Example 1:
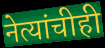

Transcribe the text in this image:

नेत्यांचीही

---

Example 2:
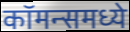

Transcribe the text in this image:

कॉमन्समध्ये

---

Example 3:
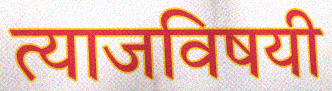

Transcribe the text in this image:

त्याजविषयी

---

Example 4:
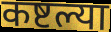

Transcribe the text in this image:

कष्टल्या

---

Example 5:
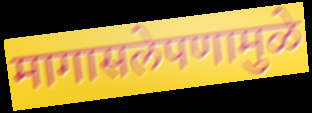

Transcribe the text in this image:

मागासलेपणामुळे